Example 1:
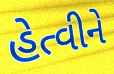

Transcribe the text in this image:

હેત્વીને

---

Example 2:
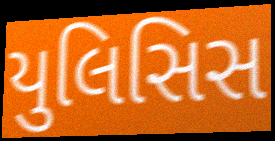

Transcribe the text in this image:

યુલિસિસ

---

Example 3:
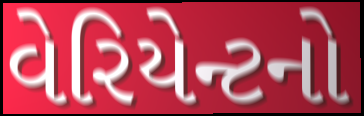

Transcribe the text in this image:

વેરિયેન્ટનો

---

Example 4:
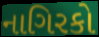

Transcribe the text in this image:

નાગિરકો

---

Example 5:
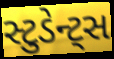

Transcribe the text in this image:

સ્ટુડેન્ટ્સ